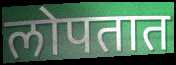
लोपतात